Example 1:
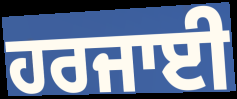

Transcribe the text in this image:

ਹਰਜਾਈ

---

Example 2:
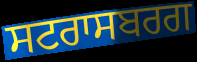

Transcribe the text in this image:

ਸਟਰਾਸਬਰਗ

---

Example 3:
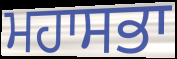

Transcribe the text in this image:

ਮਹਾਸਭਾ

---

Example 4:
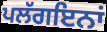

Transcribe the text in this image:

ਪਲੱਗਇਨਾਂ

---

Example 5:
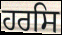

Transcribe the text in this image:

ਹਰਸਿ